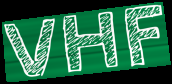
VHF